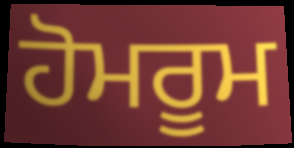
ਹੋਮਰੂਮ